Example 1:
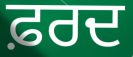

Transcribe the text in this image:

ਫ਼ਰਦ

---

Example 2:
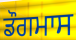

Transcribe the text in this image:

ਡੌਗਮਾਸ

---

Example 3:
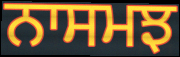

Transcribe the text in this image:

ਨਾਸਮਝ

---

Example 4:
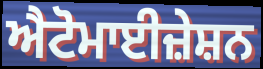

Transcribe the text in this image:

ਐਟੋਮਾਈਜ਼ੇਸ਼ਨ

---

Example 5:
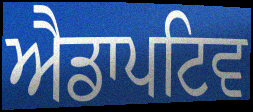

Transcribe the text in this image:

ਐਡਾਪਟਿਵ